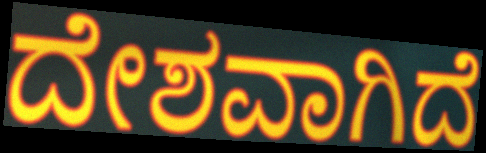
ದೇಶವಾಗಿದೆ